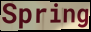
Spring